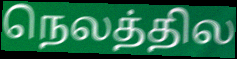
நெலத்தில